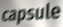
capsule